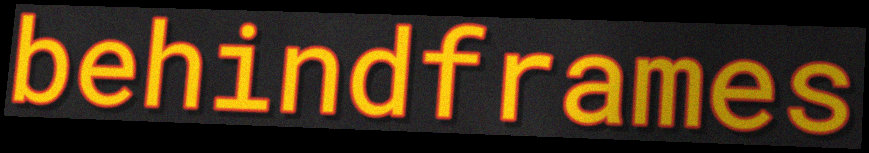
behindframes